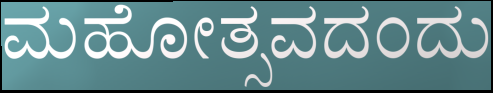
ಮಹೋತ್ಸವದಂದು